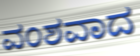
ವಂಶವಾದ